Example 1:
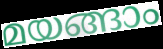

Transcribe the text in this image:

മയങ്ങാം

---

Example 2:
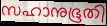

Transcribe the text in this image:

സഹാനുഭൂതി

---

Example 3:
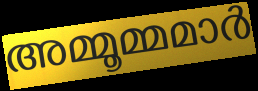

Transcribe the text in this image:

അമ്മൂമ്മമാർ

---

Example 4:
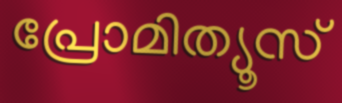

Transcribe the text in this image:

പ്രോമിത്യൂസ്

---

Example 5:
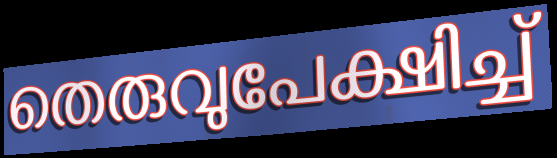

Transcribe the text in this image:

തെരുവുപേക്ഷിച്ച്